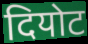
दियोट